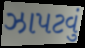
ઝાપટવું